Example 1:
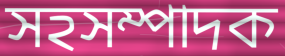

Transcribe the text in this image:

সহসম্পাদক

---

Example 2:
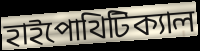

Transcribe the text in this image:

হাইপোথিটিক্যাল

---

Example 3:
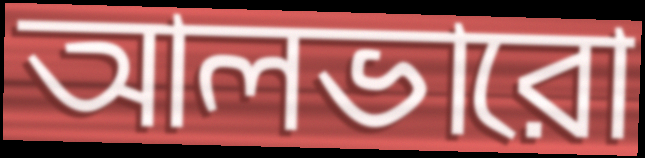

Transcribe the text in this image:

আলভারো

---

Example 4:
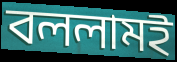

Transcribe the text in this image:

বললামই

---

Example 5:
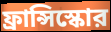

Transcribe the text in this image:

ফ্রান্সিস্কোর